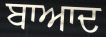
ਬਾਆਦ